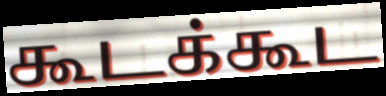
கூடக்கூட